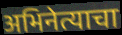
अभिनेत्याचा